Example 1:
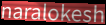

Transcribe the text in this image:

naralokesh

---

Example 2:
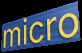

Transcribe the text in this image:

micro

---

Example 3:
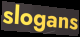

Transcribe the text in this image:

slogans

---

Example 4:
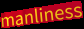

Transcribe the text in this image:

manliness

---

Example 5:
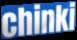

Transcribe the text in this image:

chinki